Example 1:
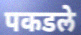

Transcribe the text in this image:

पकडले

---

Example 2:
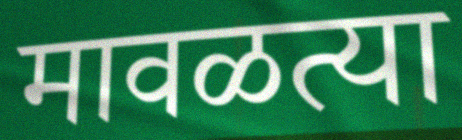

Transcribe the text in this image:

मावळत्या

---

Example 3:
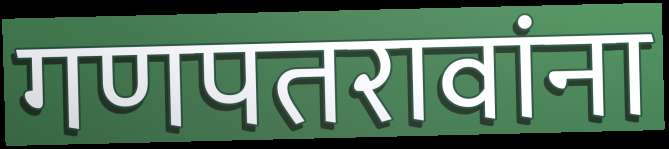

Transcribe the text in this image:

गणपतरावांना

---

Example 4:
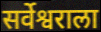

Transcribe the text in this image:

सर्वेश्वराला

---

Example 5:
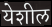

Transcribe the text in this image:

येशील